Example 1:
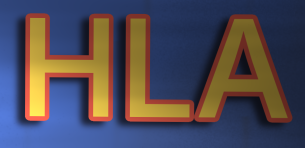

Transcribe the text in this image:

HLA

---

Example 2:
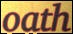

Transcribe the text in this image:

oath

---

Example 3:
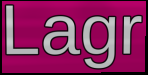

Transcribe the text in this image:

Lagr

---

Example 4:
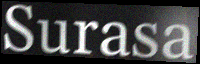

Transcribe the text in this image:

Surasa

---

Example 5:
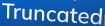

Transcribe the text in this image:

Truncated